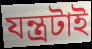
যন্ত্রটাই